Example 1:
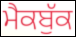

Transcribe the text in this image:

ਮੈਕਬੁੱਕ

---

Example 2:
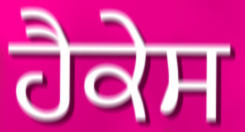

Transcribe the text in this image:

ਹੈਕੇਸ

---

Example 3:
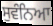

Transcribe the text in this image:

ਸੁਵੰਨਿਆ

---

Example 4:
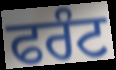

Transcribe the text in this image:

ਫਰੰਟ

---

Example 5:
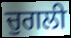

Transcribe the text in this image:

ਚੁਗਲੀ